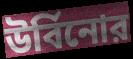
উর্বিনোর